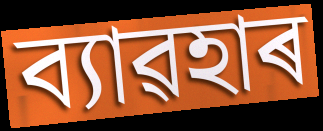
ব্যাৱহাৰ